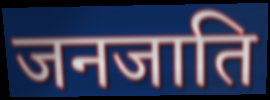
जनजाति